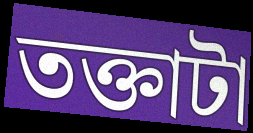
তক্তাটা